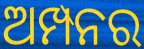
ଅମ୍ପନର